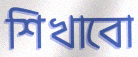
শিখাবো